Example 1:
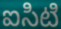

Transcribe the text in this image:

ఐసిటి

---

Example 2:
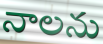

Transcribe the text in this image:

నాలను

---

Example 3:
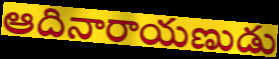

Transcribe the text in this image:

ఆదినారాయణుడు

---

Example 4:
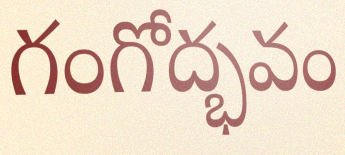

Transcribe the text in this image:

గంగోద్భవం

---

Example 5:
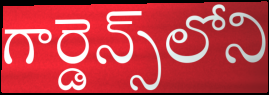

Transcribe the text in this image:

గార్డెన్స్‌లోని